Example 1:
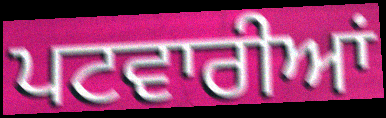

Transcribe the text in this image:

ਪਟਵਾਰੀਆਂ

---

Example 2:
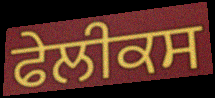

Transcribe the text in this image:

ਫੇਲੀਕਸ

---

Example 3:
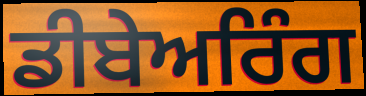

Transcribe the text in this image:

ਡੀਬੇਅਰਿੰਗ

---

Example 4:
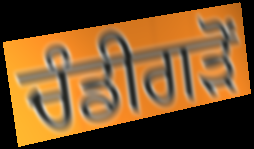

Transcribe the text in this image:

ਚੰਡੀਗੜੋਂ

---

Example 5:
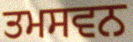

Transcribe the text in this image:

ਤਮਸਵਨ